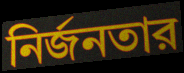
নির্জনতার